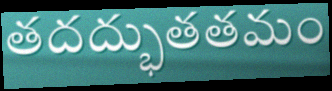
తదద్భుతతమం